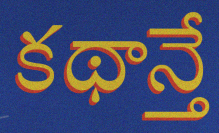
కథాన్తే